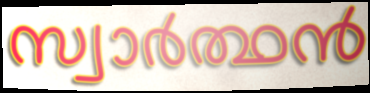
സ്വാർത്ഥൻ